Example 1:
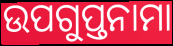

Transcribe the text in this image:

ଉପଗୁପ୍ତନାମା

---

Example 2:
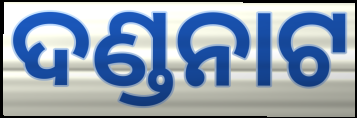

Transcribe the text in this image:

ଦଣ୍ଡନାଟ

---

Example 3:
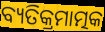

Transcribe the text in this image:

ବ୍ୟତିକ୍ରମାତ୍ମକ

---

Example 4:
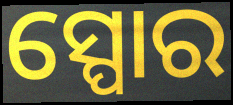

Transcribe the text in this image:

ସ୍ପୋର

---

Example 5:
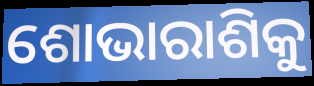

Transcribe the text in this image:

ଶୋଭାରାଶିକୁ